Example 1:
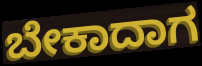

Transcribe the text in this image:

ಬೇಕಾದಾಗ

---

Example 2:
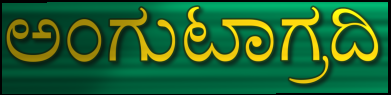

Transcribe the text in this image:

ಅಂಗುಟಾಗ್ರದಿ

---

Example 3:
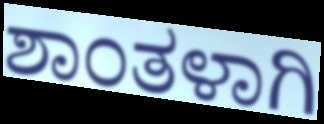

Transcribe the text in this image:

ಶಾಂತಳಾಗಿ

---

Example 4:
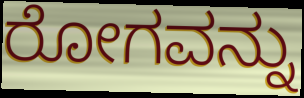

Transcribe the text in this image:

ರೋಗವನ್ನು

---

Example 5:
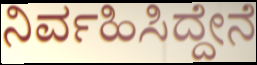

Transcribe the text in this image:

ನಿರ್ವಹಿಸಿದ್ದೇನೆ